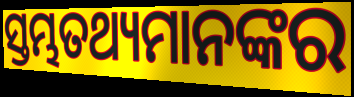
ସ୍ତମ୍ଭତଥ୍ୟମାନଙ୍କର